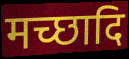
मच्छादि